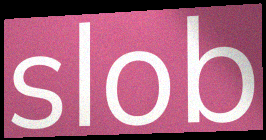
slob